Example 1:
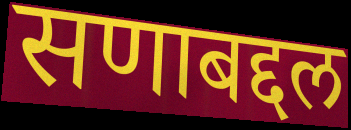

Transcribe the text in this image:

सणाबद्दल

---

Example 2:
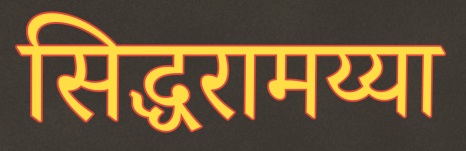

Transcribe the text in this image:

सिद्धरामय्या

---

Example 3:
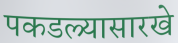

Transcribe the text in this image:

पकडल्यासारखे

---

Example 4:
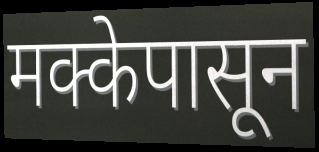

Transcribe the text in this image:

मक्केपासून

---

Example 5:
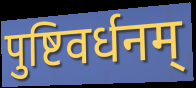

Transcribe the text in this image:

पुष्टिवर्धनम्